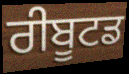
ਰੀਬੂਟਡ